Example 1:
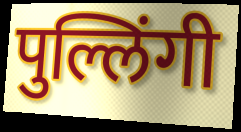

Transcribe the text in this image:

पुल्लिंगी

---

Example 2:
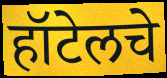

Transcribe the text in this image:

हॉटेलचे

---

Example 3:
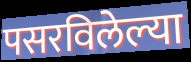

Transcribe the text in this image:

पसरविलेल्या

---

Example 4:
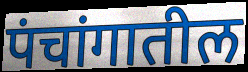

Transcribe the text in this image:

पंचांगातील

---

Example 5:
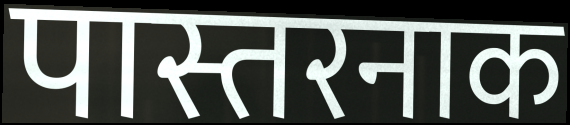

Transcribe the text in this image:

पास्तरनाक